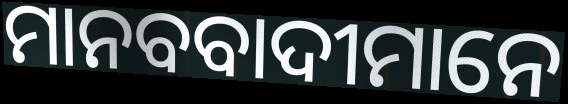
ମାନବବାଦୀମାନେ